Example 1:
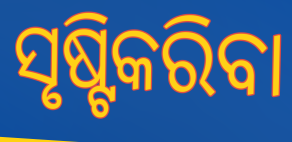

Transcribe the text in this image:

ସୃଷ୍ଟିକରିବା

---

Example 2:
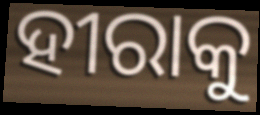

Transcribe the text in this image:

ହୀରାକୁ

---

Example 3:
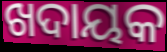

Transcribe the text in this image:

ଖଦାୟକ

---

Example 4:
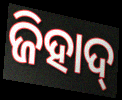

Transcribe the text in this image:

ଜିହାଦ୍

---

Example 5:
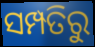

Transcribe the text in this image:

ସମ୍ପତିରୁ